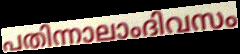
പതിന്നാലാംദിവസം